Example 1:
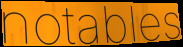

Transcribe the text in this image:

notables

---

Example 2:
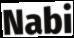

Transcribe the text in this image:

Nabi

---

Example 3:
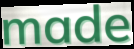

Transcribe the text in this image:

made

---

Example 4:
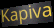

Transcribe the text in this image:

Kapiva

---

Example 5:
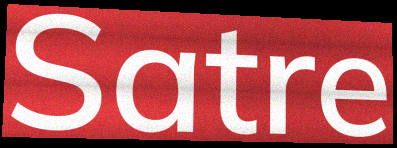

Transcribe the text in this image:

Satre